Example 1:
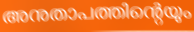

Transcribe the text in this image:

അനുതാപത്തിന്റെയും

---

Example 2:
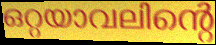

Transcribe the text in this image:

ഒറ്റയാവലിന്റെ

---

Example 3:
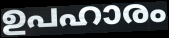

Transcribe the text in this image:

ഉപഹാരം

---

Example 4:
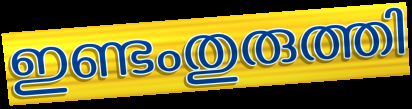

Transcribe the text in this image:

ഇണ്ടംതുരുത്തി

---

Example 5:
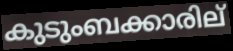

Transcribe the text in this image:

കുടുംബക്കാരില്